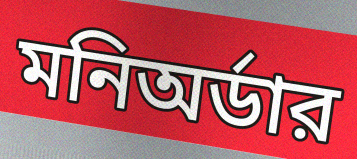
মনিঅর্ডার